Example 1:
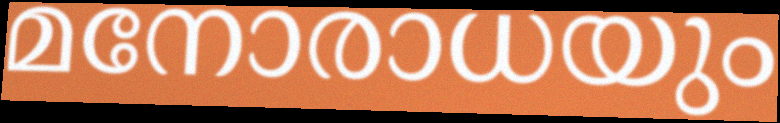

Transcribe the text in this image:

മനോരാധയും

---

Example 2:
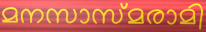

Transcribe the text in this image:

മനസാസ്മരാമി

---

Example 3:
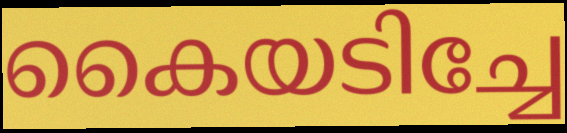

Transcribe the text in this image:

കൈയടിച്ചേ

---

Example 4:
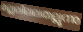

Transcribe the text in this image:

മല്ലലിലലതല്ലുന്നു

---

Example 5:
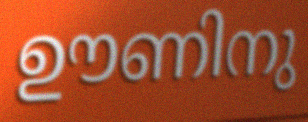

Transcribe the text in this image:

ഊണിനു